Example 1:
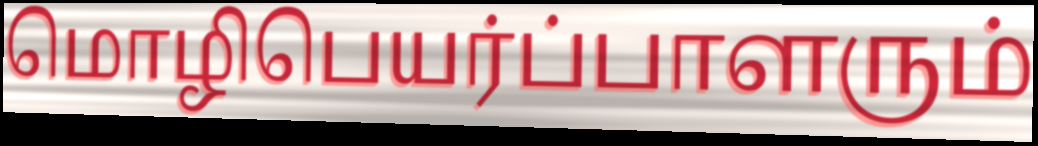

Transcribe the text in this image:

மொழிபெயர்ப்பாளரும்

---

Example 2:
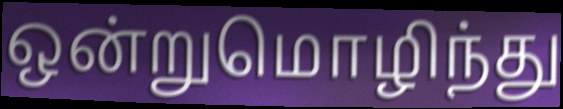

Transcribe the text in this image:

ஒன்றுமொழிந்து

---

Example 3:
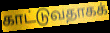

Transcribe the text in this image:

காட்டுவதாகக்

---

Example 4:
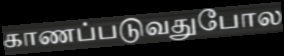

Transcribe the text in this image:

காணப்படுவதுபோல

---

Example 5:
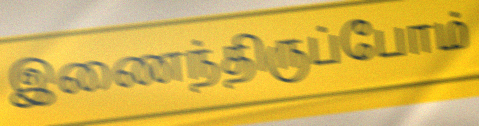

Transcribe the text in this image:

இணைந்திருப்போம்